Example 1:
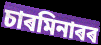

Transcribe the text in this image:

চাৰমিনাৰৰ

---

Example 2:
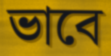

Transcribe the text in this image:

ভাবে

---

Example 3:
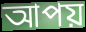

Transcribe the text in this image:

আপয়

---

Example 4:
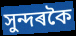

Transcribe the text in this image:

সুন্দৰকৈ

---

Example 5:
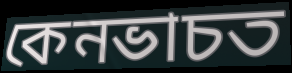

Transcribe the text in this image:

কেনভাচত